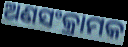
ଅଣସଂକ୍ରାମକ